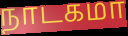
நாடகமா